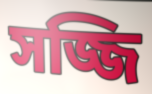
সজ্জি